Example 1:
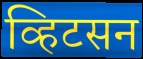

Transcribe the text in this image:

व्हिटसन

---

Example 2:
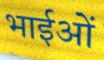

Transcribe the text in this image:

भाईओं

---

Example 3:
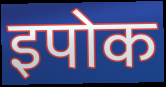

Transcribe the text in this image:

इपोक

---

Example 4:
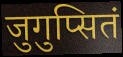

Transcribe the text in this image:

जुगुप्सितं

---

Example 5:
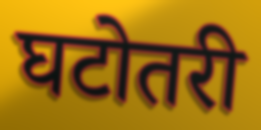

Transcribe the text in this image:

घटोतरी